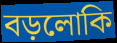
বড়লোকি